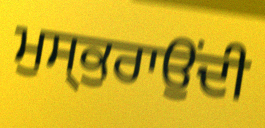
ਮੁਸ੍ਕੁਰਾਉਂਦੀ